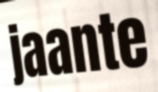
jaante